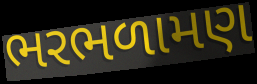
ભરભળામણ